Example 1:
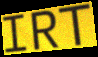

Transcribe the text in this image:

IRT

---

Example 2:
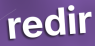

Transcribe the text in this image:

redir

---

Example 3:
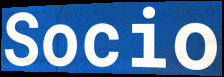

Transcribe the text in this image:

Socio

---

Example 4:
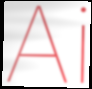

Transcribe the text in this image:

Ai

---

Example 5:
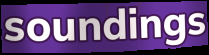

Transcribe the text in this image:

soundings